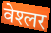
वेश्लर